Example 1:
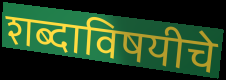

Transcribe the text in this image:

शब्दाविषयीचे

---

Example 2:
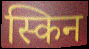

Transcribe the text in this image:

स्किन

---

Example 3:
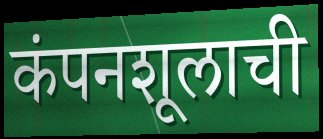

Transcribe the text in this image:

कंपनशूलाची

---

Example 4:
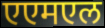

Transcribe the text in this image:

एएमएल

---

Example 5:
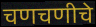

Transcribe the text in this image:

चणचणीचे